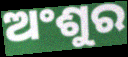
ଅଂଶୁର